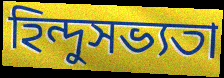
হিন্দুসভ্যতা